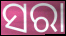
ସରା